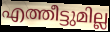
എത്തീട്ടുമില്ല